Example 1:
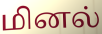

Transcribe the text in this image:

மினல்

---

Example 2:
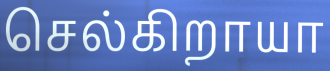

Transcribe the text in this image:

செல்கிறாயா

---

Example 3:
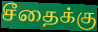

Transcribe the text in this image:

சீதைக்கு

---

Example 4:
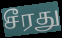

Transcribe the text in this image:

சீரது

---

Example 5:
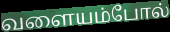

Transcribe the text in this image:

வளையம்போல்